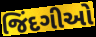
જિંદગીઓ